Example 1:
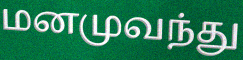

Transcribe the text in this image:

மனமுவந்து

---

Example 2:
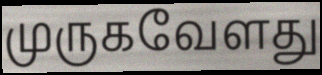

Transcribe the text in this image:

முருகவேளது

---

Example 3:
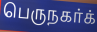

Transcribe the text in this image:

பெருநகர்க்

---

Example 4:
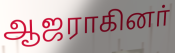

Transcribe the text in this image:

ஆஜராகினர்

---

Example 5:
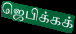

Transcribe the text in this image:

ஜெபிக்கக்